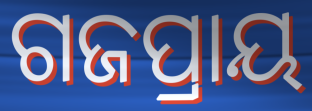
ଗଜପ୍ରାୟ